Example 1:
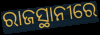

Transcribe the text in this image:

ରାଜସ୍ଥାନୀରେ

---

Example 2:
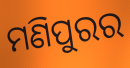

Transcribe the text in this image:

ମଣିପୁରର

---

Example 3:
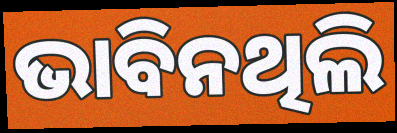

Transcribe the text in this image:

ଭାବିନଥିଲି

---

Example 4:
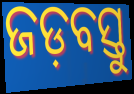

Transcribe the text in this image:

ଜଡ଼ବସ୍ତୁ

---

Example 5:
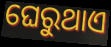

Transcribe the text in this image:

ଘେରୁଥାଏ